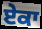
ਏਕਾ